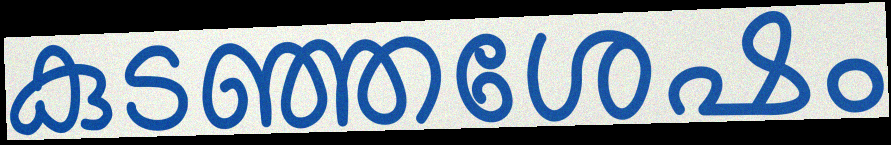
കുടഞ്ഞശേഷം